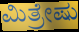
ಮಿತ್ರೇಷು